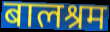
बालश्रम